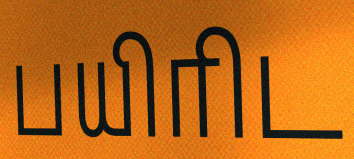
பயிரிட